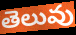
తెలువు